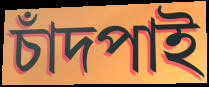
চাঁদপাই